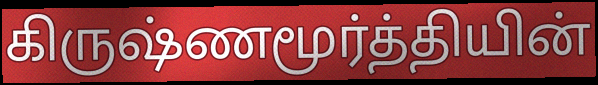
கிருஷ்ணமூர்த்தியின்